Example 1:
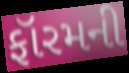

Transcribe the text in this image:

ફૉરમની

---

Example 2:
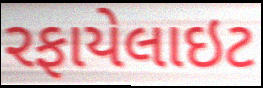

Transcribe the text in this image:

રફાયેલાઇટ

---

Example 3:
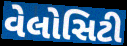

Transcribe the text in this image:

વેલોસિટી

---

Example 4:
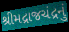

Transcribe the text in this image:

શ્રીમદ્રાજચંદ્રનું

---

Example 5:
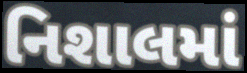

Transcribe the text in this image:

નિશાલમાં